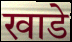
खाडे